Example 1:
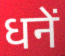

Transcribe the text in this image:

धनें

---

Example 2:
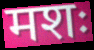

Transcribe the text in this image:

मशः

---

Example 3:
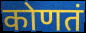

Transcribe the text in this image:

कोणतं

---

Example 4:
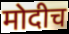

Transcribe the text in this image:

मोदीच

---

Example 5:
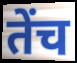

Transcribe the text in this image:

तेंच